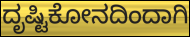
ದೃಷ್ಟಿಕೋನದಿಂದಾಗಿ